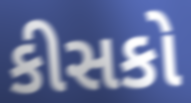
કીસકો